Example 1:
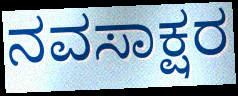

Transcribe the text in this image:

ನವಸಾಕ್ಷರ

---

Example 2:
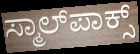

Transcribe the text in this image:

ಸ್ಮಾಲ್‌ಪಾಕ್ಸ್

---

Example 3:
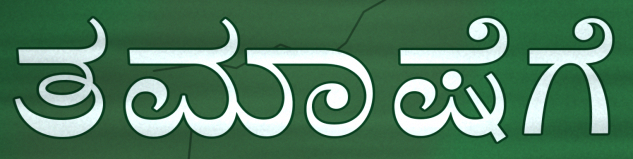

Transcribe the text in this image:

ತಮಾಷೆಗೆ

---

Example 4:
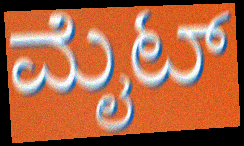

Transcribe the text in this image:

ಮೈಟ್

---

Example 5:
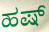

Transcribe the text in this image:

ಹಷ್